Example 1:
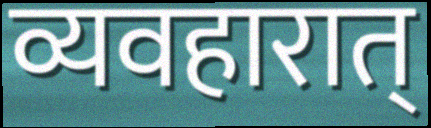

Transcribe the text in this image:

व्यवहारात्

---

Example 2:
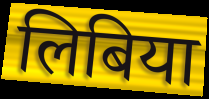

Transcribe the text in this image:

लिबिया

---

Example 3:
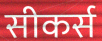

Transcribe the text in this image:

सीकर्स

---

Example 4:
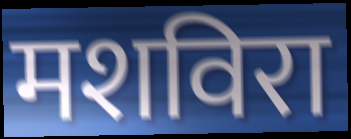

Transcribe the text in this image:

मशविरा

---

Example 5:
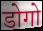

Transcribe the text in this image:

डोगो